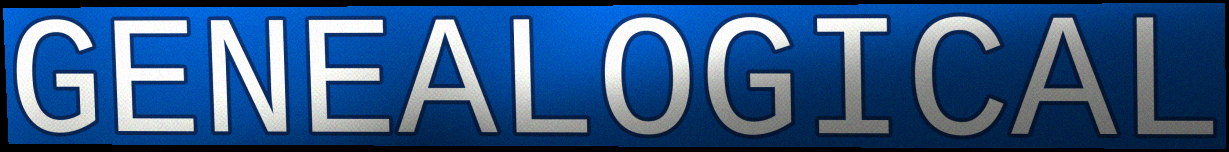
GENEALOGICAL